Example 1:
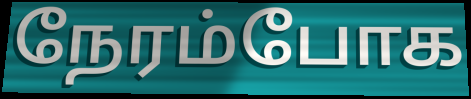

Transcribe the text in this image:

நேரம்போக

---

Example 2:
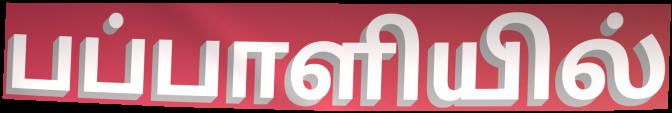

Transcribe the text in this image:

பப்பாளியில்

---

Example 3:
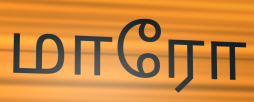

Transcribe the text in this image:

மாரோ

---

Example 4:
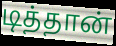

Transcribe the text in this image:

டித்தான்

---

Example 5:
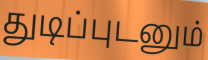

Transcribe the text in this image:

துடிப்புடனும்